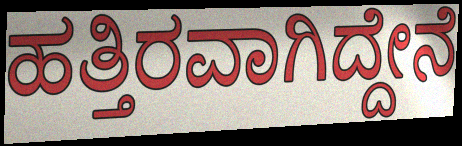
ಹತ್ತಿರವಾಗಿದ್ದೇನೆ